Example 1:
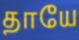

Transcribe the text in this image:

தாயே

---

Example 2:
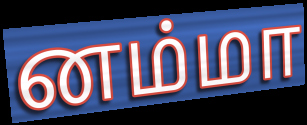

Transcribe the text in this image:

னம்மா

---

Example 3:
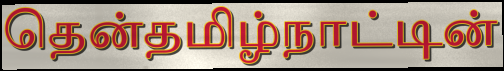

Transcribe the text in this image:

தென்தமிழ்நாட்டின்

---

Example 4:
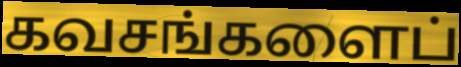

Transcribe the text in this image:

கவசங்களைப்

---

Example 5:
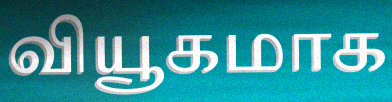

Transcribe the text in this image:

வியூகமாக